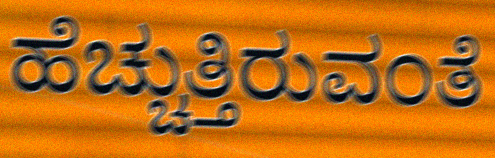
ಹೆಚ್ಚುತ್ತಿರುವಂತೆ